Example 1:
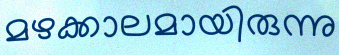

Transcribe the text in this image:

മഴക്കാലമായിരുന്നു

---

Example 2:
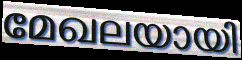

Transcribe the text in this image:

മേഖലയായി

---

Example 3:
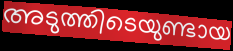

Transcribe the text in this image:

അടുത്തിടെയുണ്ടായ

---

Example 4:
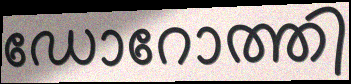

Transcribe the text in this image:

ഡോറോത്തി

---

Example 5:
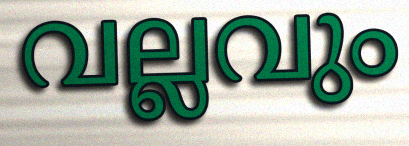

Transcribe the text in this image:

വല്ലവും